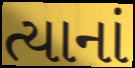
ત્યાનાં